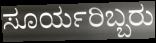
ಸೂರ್ಯರಿಬ್ಬರು